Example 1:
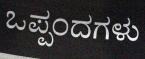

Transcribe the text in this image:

ಒಪ್ಪಂದಗಳು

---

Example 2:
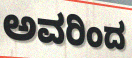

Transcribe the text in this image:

ಅವರಿಂದ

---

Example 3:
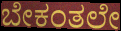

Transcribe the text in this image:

ಬೇಕಂತಲೇ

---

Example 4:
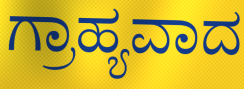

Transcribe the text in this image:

ಗ್ರಾಹ್ಯವಾದ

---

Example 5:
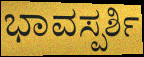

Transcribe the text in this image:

ಭಾವಸ್ಪರ್ಶಿ